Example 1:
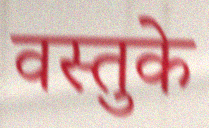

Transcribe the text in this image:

वस्तुके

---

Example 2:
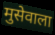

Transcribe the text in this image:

मुसेवाला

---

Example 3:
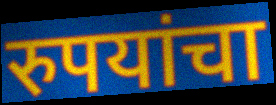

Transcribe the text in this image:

रुपयांचा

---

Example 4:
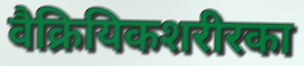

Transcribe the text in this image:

वैक्रियिकशरीरका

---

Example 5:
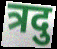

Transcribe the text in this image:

त्रदु